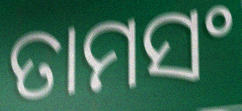
ତାମସଂ